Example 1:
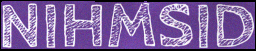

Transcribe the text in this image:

NIHMSID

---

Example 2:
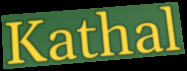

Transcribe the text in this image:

Kathal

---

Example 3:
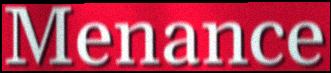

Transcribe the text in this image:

Menance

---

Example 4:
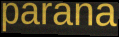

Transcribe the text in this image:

parana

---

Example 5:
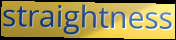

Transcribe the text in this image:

straightness